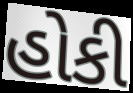
હોકી